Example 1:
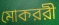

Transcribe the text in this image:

মোকররী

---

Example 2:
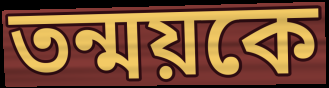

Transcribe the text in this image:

তন্ময়কে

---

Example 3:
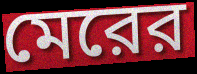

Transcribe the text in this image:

মেরের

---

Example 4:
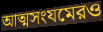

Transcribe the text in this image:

আত্মসংযমেরও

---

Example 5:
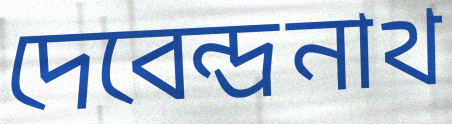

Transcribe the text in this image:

দেবেন্দ্রনাথ